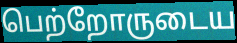
பெற்றோருடைய